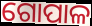
ଗୋପାଳ